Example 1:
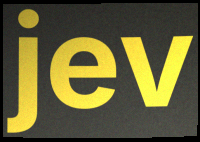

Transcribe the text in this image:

jev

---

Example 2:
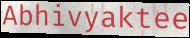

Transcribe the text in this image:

Abhivyaktee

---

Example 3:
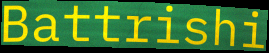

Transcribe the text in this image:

Battrishi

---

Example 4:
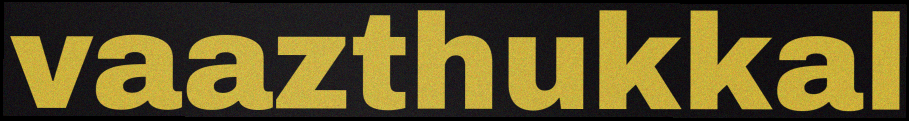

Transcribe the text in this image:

vaazthukkal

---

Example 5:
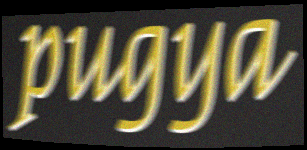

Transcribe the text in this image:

pugya